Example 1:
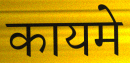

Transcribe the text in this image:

कायमे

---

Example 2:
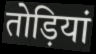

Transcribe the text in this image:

तोड़ियां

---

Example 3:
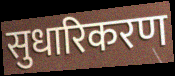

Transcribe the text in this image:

सुधारिकरण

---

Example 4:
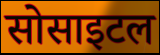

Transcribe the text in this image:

सोसाइटल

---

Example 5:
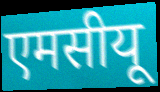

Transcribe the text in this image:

एमसीयू